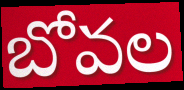
బోవల